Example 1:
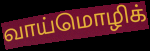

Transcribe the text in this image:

வாய்மொழிக்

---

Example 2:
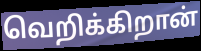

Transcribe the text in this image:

வெறிக்கிறான்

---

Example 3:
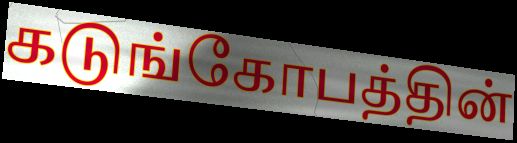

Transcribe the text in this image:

கடுங்கோபத்தின்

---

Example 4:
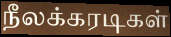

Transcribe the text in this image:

நீலக்கரடிகள்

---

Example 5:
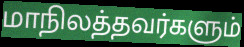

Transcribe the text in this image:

மாநிலத்தவர்களும்